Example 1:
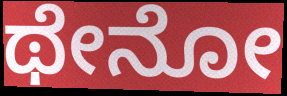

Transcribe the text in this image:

ಥೇನೋ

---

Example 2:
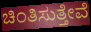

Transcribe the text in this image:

ಚಿಂತಿಸುತ್ತೇವೆ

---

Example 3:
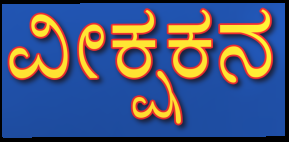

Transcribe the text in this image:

ವೀಕ್ಷಕನ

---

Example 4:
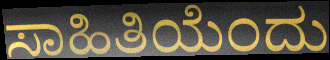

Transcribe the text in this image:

ಸಾಹಿತಿಯೆಂದು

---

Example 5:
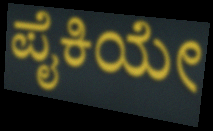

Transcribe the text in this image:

ಪೈಕಿಯೇ